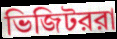
ভিজিটররা